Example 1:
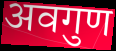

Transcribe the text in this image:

अवगुण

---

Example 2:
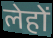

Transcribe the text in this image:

लेहों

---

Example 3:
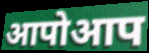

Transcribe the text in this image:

आपोआप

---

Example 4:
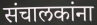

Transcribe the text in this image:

संचालकांना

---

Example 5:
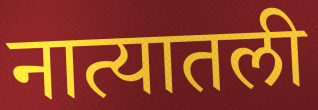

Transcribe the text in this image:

नात्यातली